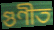
গুণীত